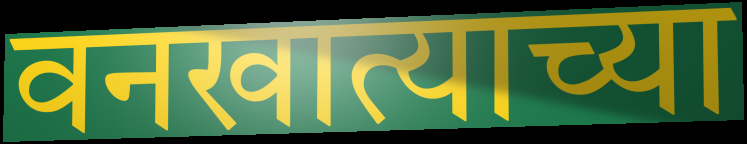
वनखात्याच्या